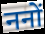
ननों